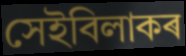
সেইবিলাকৰ